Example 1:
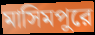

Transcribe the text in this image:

মাসিমপুরে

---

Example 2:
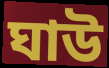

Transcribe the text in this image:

ঘাউ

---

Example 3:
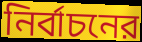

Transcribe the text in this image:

নির্বাচনের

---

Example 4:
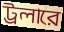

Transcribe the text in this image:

ট্রলারে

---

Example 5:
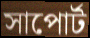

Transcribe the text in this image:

সাপোর্ট